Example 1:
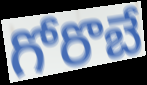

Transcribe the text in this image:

గోరొబే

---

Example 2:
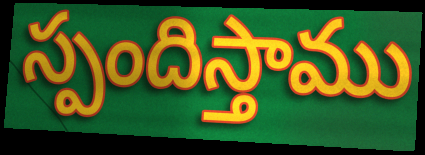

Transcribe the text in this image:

స్పందిస్తాము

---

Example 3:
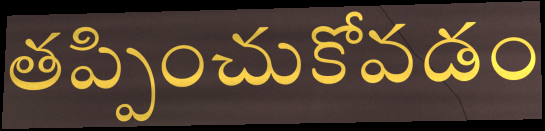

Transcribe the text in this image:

తప్పించుకోవడం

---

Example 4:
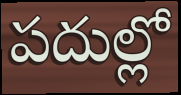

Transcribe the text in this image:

పదుల్లో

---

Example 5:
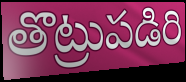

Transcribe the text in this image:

తొట్రుపడిరి